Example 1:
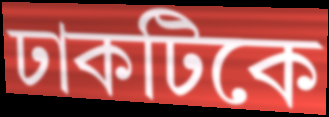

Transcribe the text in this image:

ঢাকটিকে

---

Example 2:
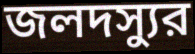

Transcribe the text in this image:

জলদস্যুর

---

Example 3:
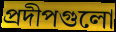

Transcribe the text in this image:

প্রদীপগুলো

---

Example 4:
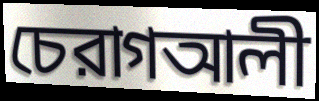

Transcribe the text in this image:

চেরাগআলী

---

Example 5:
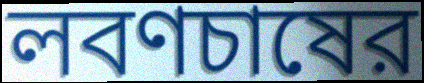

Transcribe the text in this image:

লবণচাষের